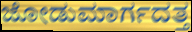
ಜೋಡುಮಾರ್ಗದತ್ತ